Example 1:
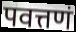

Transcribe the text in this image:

पवत्तणं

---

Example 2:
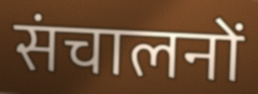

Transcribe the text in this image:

संचालनों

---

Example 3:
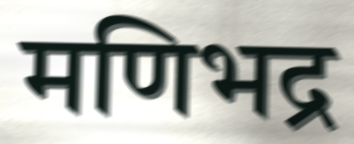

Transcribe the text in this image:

मणिभद्र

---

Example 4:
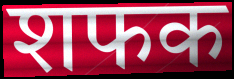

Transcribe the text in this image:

शफक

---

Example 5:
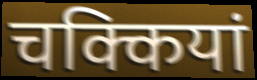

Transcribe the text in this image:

चक्कियां